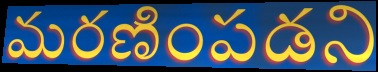
మరణింపడని